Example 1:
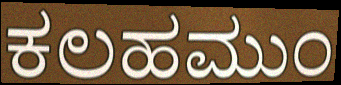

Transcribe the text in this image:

ಕಲಹಮುಂ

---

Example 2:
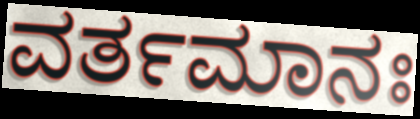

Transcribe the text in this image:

ವರ್ತಮಾನಃ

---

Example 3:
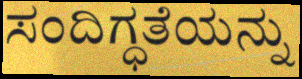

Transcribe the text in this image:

ಸಂದಿಗ್ಧತೆಯನ್ನು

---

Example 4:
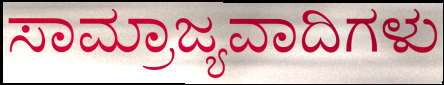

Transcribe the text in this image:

ಸಾಮ್ರಾಜ್ಯವಾದಿಗಳು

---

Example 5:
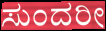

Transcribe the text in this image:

ಸುಂದರೀ